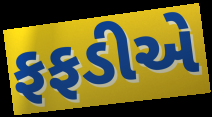
ફફડીએ